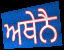
ਅਥੇਨੈ